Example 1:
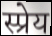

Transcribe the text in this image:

स्प्रेय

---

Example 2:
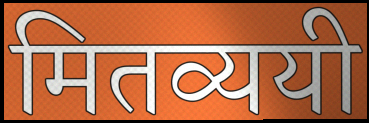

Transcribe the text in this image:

मितव्ययी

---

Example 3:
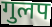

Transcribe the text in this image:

गुलप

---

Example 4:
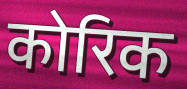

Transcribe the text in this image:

कोरिक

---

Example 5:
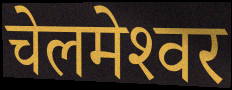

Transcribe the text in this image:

चेलमेश्‍वर